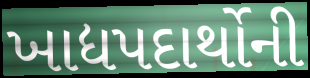
ખાદ્યપદાર્થોની